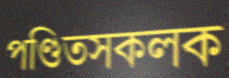
পণ্ডিতসকলক